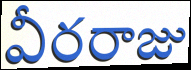
వీరరాజు